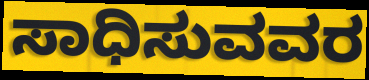
ಸಾಧಿಸುವವರ